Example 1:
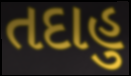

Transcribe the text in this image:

તદાહુ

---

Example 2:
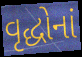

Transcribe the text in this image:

વૃદ્ધોનાં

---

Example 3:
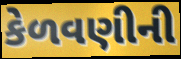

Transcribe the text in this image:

કેળવણીની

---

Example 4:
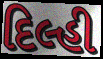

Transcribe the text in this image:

દિલ્હી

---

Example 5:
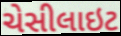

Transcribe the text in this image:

ચેસીલાઇટ